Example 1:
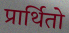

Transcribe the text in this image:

प्रार्थितो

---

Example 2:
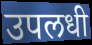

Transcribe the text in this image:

उपलधी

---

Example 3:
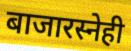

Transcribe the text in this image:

बाजारस्नेही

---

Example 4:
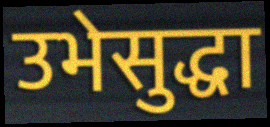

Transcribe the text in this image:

उभेसुद्धा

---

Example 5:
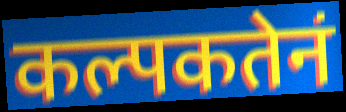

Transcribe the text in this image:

कल्पकतेनं